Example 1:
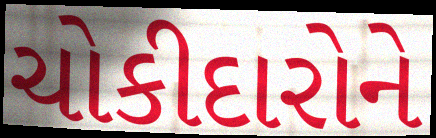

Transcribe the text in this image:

ચોકીદારોને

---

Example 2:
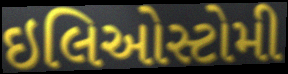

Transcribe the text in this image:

ઇલિઓસ્ટોમી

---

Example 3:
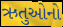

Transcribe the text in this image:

ઋતુઓનો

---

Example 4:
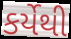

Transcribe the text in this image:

કર્યેથી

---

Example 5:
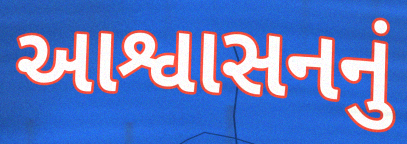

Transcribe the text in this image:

આશ્વાસનનું